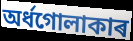
অৰ্ধগোলাকাৰ